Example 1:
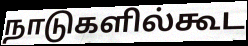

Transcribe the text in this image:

நாடுகளில்கூட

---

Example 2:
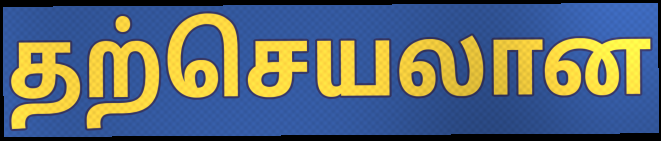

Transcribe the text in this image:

தற்செயலான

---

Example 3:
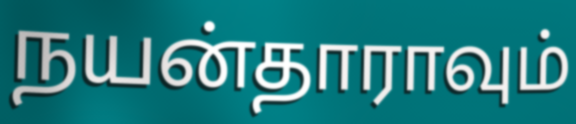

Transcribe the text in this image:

நயன்தாராவும்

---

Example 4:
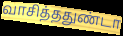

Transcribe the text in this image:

வாசித்ததுண்டா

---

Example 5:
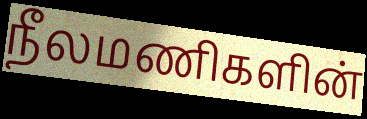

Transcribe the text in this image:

நீலமணிகளின்